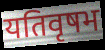
यतिवृषभ